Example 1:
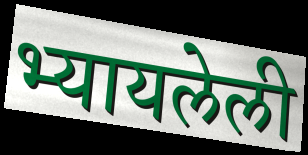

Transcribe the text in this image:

भ्यायलेली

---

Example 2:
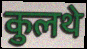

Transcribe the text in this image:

कुलथे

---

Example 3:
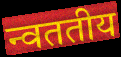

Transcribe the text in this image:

न्वततीय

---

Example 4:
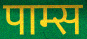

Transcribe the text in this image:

पाम्स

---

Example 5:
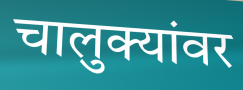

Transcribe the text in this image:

चालुक्यांवर